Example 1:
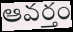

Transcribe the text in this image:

ఆవర్తం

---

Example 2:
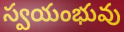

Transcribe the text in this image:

స్వయంభువు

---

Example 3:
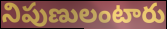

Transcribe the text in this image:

నిపుణులంటారు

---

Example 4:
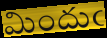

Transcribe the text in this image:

మిందుఁ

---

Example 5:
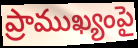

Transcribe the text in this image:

ప్రాముఖ్యంపై